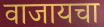
वाजायचा